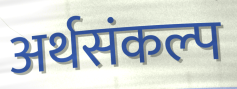
अर्थसंकल्प